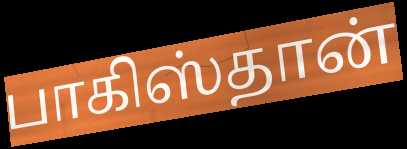
பாகிஸ்தான்